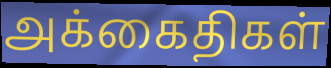
அக்கைதிகள்